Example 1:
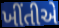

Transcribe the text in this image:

ખીંતીએ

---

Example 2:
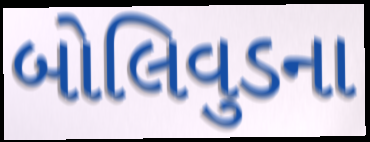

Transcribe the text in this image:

બોલિવુડના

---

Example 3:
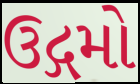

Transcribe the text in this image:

ઉદ્ગમો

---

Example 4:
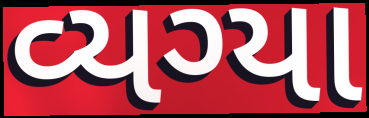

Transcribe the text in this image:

વ્યગ્યા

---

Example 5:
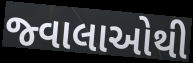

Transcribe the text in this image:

જ્વાલાઓથી